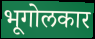
भूगोलकार